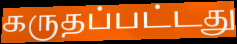
கருதப்பட்டது